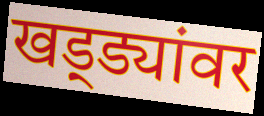
खड्ड्यांवर